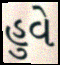
હુવે